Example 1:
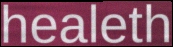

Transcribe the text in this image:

healeth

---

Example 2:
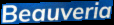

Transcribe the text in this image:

Beauveria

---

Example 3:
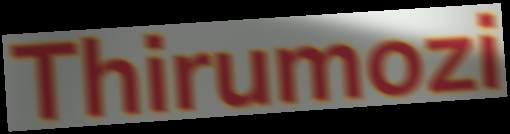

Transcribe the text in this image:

Thirumozi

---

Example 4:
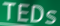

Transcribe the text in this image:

TEDs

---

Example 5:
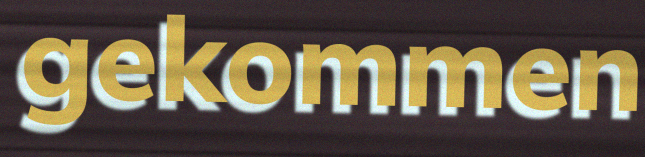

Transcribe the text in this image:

gekommen